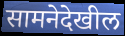
सामनेदेखील